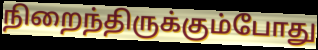
நிறைந்திருக்கும்போது